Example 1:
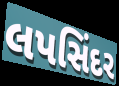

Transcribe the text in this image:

લપસિંદર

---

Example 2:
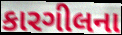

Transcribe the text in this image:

કારગીલના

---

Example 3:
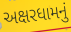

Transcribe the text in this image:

અક્ષરધામનું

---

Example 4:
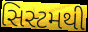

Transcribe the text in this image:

સિસ્ટમથી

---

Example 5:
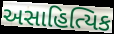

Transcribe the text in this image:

અસાહિત્યિક